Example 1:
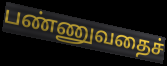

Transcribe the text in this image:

பண்ணுவதைச்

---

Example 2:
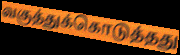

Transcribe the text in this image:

வகுத்துக்கொடுத்தது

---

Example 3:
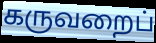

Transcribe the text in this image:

கருவறைப்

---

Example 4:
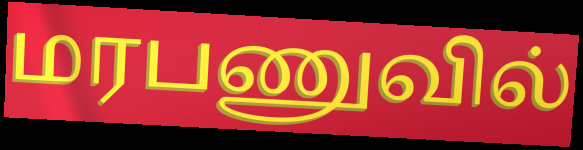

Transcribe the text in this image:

மரபணுவில்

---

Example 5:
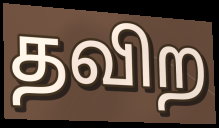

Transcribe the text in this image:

தவிற